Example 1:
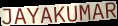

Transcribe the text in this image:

JAYAKUMAR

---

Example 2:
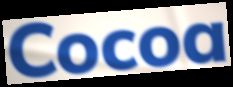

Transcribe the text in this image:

Cocoa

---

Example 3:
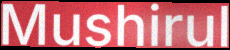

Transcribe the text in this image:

Mushirul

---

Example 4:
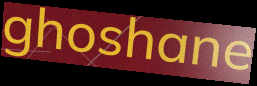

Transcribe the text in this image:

ghoshane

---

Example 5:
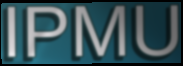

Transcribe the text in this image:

IPMU